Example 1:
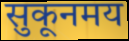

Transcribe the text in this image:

सुकूनमय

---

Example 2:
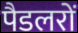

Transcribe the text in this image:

पैडलरों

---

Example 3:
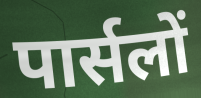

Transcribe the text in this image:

पार्सलों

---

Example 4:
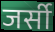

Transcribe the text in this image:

जर्सी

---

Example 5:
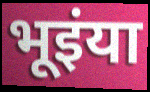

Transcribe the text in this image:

भूइंया